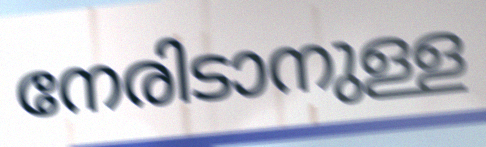
നേരിടാനുള്ള